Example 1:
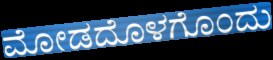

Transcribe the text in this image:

ಮೋಡದೊಳಗೊಂದು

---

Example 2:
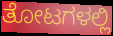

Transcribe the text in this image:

ತೋಟಗಳಲ್ಲಿ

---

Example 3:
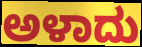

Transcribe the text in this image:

ಅಳಾದು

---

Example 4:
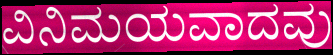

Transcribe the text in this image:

ವಿನಿಮಯವಾದವು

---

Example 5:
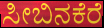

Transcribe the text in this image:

ಸೀಬಿನಕೆರೆ